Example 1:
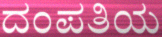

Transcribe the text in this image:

ದಂಪತಿಯ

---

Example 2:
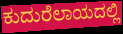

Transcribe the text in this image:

ಕುದುರೆಲಾಯದಲ್ಲಿ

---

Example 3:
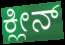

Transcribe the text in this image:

ಕ್ಲೀನ್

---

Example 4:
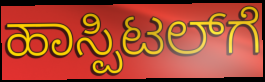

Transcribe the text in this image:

ಹಾಸ್ಪಿಟಲ್‌ಗೆ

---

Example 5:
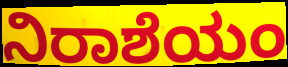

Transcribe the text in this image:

ನಿರಾಶೆಯಂ